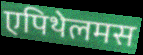
एपिथेलमस